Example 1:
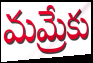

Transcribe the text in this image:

మమ్రేకు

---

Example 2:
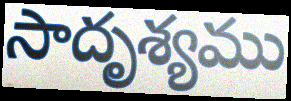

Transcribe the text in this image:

సాదృశ్యము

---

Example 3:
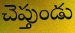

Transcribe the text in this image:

చెప్తుండు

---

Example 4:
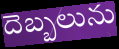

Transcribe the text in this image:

దెబ్బలును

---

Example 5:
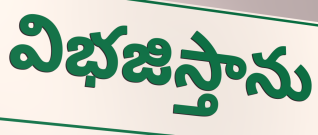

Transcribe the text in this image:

విభజిస్తాను